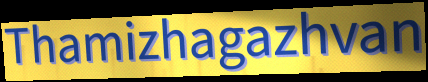
Thamizhagazhvan